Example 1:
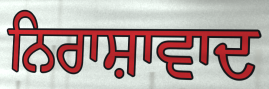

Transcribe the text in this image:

ਨਿਰਾਸ਼ਾਵਾਦ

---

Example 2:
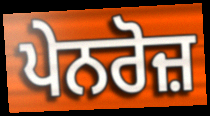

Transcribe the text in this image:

ਪੇਨਰੋਜ਼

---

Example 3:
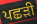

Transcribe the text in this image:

ਪਛੜੀ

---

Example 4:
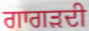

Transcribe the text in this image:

ਗਾਗੜਦੀ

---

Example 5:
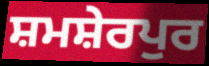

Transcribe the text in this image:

ਸ਼ਮਸ਼ੇਰਪੁਰ